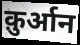
क़ुर्आन